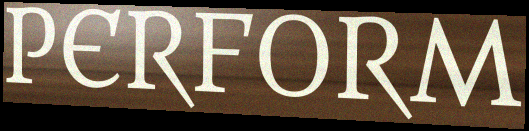
PERFORM